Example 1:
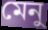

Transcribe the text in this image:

মেনু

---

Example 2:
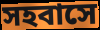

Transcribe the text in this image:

সহবাসে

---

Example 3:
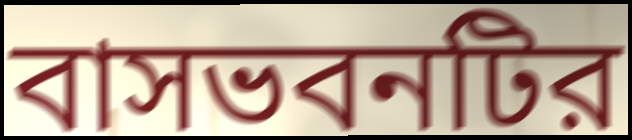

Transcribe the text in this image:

বাসভবনটির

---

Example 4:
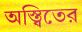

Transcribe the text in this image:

অস্ত্বিতের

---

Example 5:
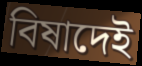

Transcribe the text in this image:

বিষাদেই